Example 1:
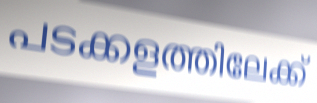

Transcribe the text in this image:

പടക്കളത്തിലേക്ക്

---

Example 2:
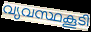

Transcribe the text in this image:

വ്യവസ്ഥകൂടി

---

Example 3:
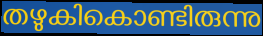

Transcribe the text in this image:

തഴുകികൊണ്ടിരുന്നു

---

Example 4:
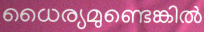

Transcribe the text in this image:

ധൈര്യമുണ്ടെങ്കിൽ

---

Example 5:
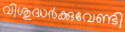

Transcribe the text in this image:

വിശുദ്ധർക്കുവേണ്ടി